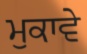
ਮੁਕਾਵੇ